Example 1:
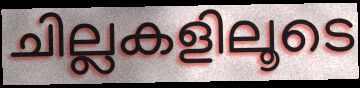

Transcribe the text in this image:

ചില്ലകളിലൂടെ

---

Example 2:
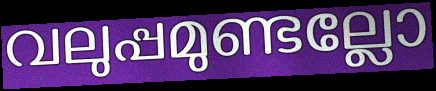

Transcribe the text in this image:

വലുപ്പമുണ്ടല്ലോ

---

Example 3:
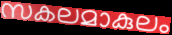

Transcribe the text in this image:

സകലമാകുലം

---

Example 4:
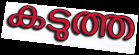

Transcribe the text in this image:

കടുത്ത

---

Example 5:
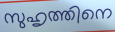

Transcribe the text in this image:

സുഹൃത്തിനെ